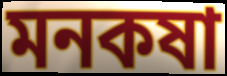
মনকষা